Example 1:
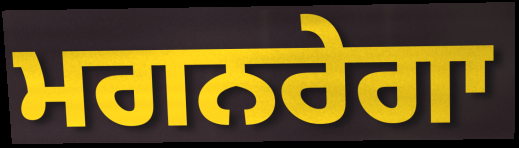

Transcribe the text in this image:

ਮਗਨਰੇਗਾ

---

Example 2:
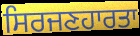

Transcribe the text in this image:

ਸਿਰਜਣਹਾਰਤਾ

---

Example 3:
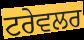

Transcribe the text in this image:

ਟਰੇਵਲਰ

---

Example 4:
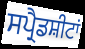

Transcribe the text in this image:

ਸਪ੍ਰੈਡਸ਼ੀਟਾਂ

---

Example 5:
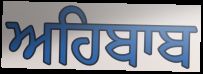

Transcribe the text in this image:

ਅਹਿਬਾਬ